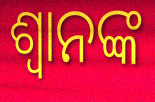
ଶ୍ବାନଙ୍କ